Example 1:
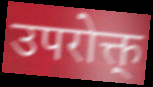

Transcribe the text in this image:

उपरोक्त्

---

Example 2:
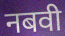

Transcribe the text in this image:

नबवी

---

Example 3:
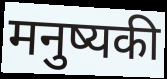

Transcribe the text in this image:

मनुष्यकी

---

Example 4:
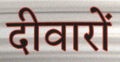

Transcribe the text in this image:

दीवारों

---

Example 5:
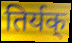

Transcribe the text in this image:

तिर्यक्